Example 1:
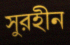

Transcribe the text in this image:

সুরহীন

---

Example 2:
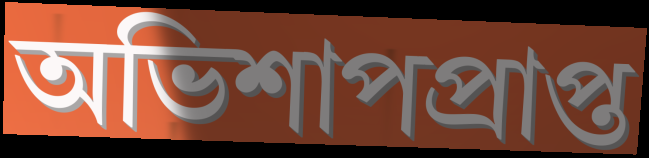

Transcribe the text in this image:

অভিশাপপ্রাপ্ত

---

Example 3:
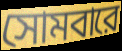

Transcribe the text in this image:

সোমবারে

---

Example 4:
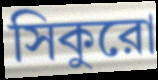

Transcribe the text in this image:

সিকুরো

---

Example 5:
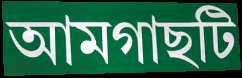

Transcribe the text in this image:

আমগাছটি